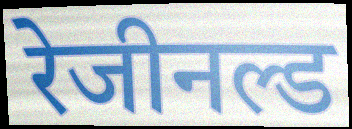
रेजीनल्ड